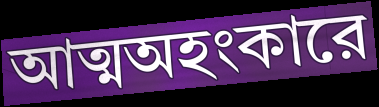
আত্মঅহংকারে